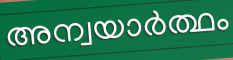
അന്വയാർത്ഥം